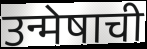
उन्मेषाची